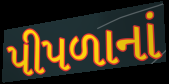
પીપળાનાં